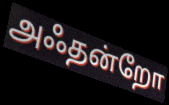
அஃதன்றோ